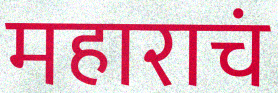
महाराचं